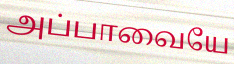
அப்பாவையே